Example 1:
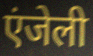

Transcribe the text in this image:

एंजेली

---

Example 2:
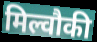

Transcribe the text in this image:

मिल्वौकी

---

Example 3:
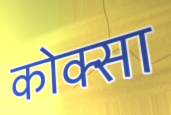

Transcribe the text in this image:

कोक्सा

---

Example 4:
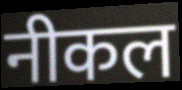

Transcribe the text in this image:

नीकल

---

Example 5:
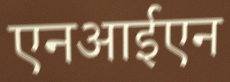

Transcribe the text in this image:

एनआईएन